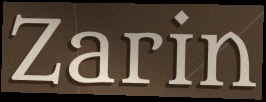
Zarin